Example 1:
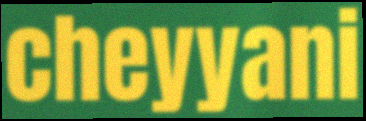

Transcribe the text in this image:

cheyyani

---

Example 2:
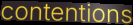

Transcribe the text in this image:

contentions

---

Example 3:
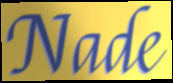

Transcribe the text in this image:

Nade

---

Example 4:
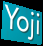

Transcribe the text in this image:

Yoji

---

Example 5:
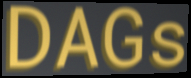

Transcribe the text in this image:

DAGs